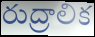
రుద్రాలిక